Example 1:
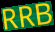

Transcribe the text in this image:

RRB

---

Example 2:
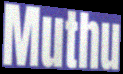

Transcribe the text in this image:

Muthu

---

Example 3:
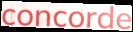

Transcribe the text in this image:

concorde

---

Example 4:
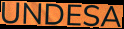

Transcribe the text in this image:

UNDESA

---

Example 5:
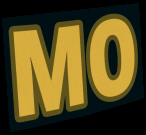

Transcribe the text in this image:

MO